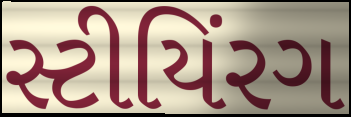
સ્ટીયિંરગ